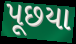
પૂછયા